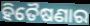
ହିତୈଷଣାର